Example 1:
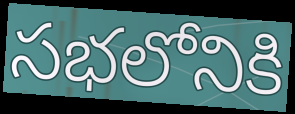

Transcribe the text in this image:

సభలోనికి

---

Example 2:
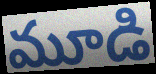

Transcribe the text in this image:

మూడి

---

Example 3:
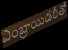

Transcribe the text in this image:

ఎంబ్రాయిడరీతో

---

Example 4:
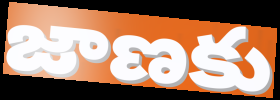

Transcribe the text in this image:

జాణకు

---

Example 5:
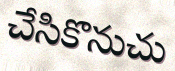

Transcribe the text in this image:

చేసికొనుచు